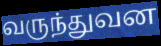
வருந்துவன